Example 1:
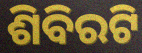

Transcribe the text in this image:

ଶିବିରଟି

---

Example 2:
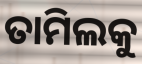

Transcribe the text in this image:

ତାମିଲକୁ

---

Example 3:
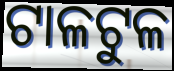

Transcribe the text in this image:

ଟାଳଟୁଳ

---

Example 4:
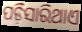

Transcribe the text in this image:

ପଡ଼ିସାରିଥାଏ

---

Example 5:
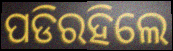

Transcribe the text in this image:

ପଡିରହିଲେ